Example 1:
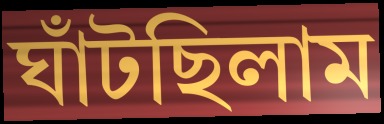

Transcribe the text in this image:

ঘাঁটছিলাম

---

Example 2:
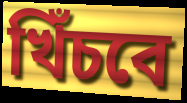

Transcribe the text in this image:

খিঁচবে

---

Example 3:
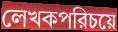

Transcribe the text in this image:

লেখকপরিচয়ে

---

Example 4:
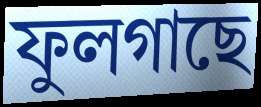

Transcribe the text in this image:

ফুলগাছে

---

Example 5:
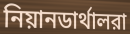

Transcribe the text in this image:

নিয়ানডার্থালরা